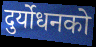
दुर्योधनको